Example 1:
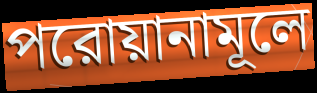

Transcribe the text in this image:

পরোয়ানামূলে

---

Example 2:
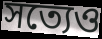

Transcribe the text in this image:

সত্যেও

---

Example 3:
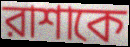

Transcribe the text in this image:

রাশাকে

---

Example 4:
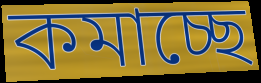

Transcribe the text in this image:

কমাচ্ছে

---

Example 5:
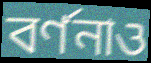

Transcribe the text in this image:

বর্ণনাও